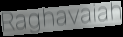
Raghavaiah